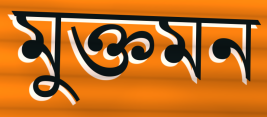
মুক্তমন